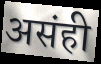
असंही